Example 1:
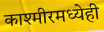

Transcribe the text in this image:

काश्‍मीरमध्येही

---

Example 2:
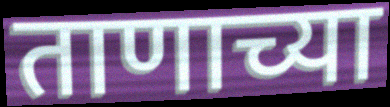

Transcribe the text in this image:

ताणाच्या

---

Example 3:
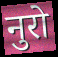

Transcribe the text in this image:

नुरो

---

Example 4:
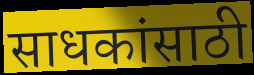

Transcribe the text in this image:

साधकांसाठी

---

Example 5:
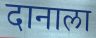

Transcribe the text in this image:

दानाला